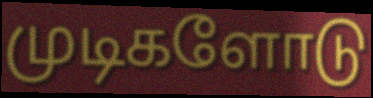
முடிகளோடு